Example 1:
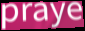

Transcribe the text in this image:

praye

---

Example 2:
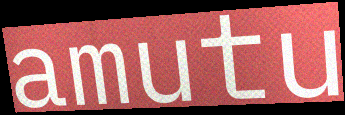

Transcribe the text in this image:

amutu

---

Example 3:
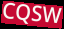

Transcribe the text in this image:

CQSW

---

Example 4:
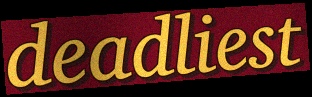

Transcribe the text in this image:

deadliest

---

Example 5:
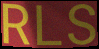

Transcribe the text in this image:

RLS